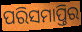
ପରିସମାପ୍ତିର